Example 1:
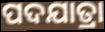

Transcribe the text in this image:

ପଦଯାତ୍ରା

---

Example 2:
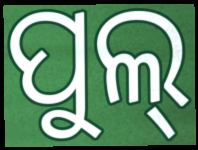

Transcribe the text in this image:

ପୁଲ୍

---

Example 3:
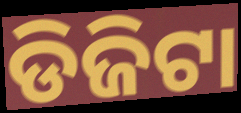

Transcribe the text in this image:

ଡିଜିଟା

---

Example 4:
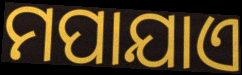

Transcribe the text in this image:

ମପାଯାଏ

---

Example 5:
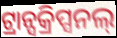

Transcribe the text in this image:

ଟ୍ରାନ୍ସକ୍ରିପ୍ସନଲ୍